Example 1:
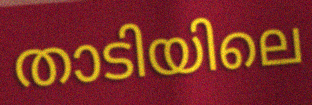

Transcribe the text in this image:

താടിയിലെ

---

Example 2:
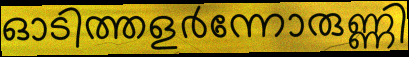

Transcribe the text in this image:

ഓടിത്തളർന്നോരുണ്ണി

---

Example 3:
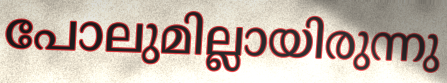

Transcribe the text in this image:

പോലുമില്ലായിരുന്നു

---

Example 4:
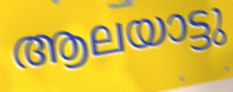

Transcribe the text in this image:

ആലയാട്ടു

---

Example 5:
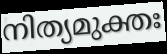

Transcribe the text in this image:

നിത്യമുക്തഃ